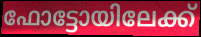
ഫോട്ടോയിലേക്ക്